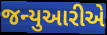
જન્યુઆરીએ